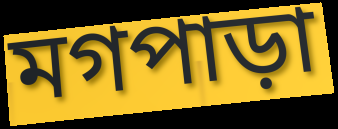
মগপাড়া